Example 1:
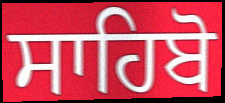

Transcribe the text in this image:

ਸਾਹਿਬੋ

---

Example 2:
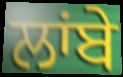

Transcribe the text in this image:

ਲਾਂਬੇ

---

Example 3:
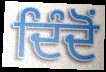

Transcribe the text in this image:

ਦਿੰਦੋਂ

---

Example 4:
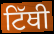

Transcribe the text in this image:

ਟਿੱਥੀ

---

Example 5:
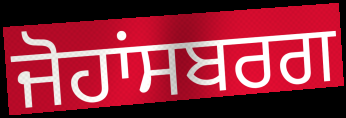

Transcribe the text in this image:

ਜੋਹਾਂਸਬਰਗ